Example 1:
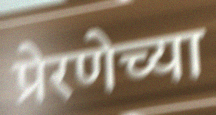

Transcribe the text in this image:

प्रेरणेच्या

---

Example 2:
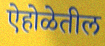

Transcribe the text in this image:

ऐहोळेतील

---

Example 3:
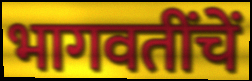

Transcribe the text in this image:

भागवतींचें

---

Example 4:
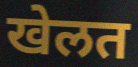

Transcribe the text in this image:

खेलत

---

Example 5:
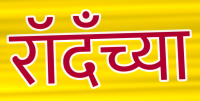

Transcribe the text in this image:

रॉदँच्या